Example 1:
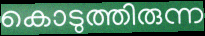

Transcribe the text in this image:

കൊടുത്തിരുന്ന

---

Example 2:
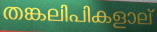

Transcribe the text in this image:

തങ്കലിപികളാല്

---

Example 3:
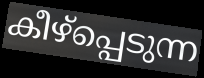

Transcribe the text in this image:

കീഴ്പ്പെടുന്ന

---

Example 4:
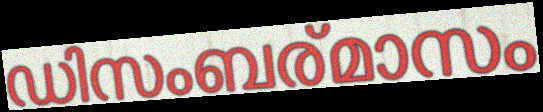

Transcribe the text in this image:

ഡിസംബര്മാസം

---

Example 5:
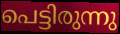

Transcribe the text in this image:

പെട്ടിരുന്നു